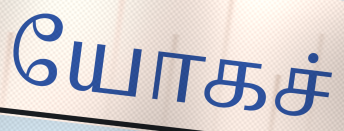
யோகச்